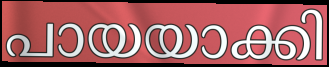
പായയാക്കി